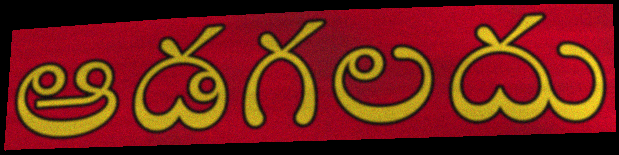
ఆడగలదు